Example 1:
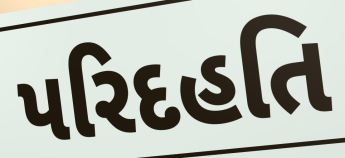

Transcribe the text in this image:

પરિદહતિ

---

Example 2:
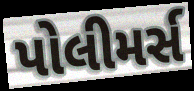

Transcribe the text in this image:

પોલીમર્સ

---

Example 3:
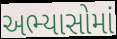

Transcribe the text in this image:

અભ્યાસોમાં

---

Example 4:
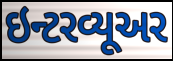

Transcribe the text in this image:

ઇન્ટરવ્યૂઅર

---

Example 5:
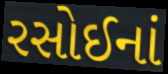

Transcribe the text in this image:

રસોઈનાં